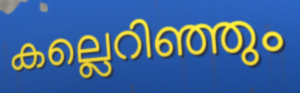
കല്ലെറിഞ്ഞും